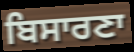
ਬਿਸਾਰਣਾ